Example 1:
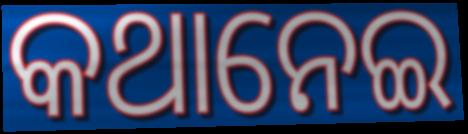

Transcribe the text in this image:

କଥାନେଇ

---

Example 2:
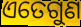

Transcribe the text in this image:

ଏତେଗୁଣ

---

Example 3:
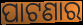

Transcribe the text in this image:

ପାଟଣାର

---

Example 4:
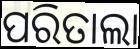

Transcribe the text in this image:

ପରିତାଲା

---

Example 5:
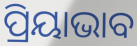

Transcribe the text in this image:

ପ୍ରିୟାଭାବ